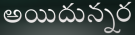
అయిదున్నర